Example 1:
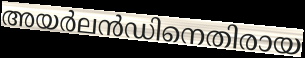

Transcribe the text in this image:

അയർലൻഡിനെതിരായ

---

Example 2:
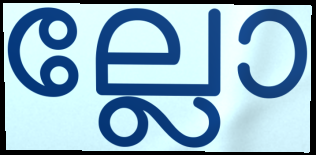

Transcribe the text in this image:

ല്ലോ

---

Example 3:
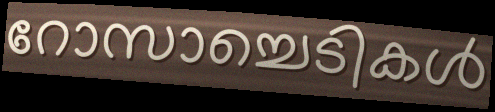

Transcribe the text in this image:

റോസാച്ചെടികൾ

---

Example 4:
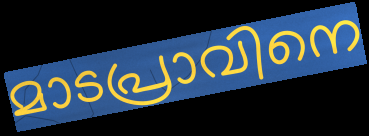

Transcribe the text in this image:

മാടപ്രാവിനെ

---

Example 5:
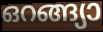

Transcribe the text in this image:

ഒറങ്ങ്യാ